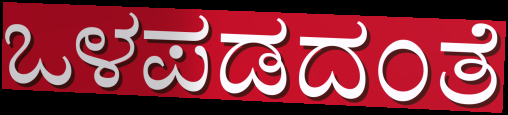
ಒಳಪಡದಂತೆ